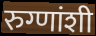
रुग्णांशी